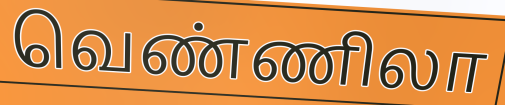
வெண்ணிலா